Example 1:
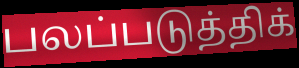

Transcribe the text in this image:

பலப்படுத்திக்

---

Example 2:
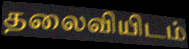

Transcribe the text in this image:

தலைவியிடம்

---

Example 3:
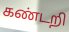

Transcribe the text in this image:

கண்டறி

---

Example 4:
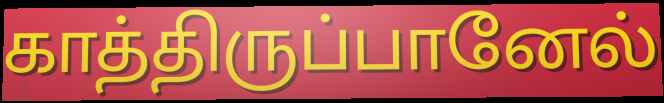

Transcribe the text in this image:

காத்திருப்பானேல்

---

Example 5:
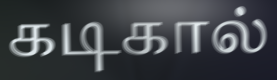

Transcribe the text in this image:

கடிகால்